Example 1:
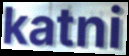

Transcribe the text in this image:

katni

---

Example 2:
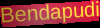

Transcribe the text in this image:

Bendapudi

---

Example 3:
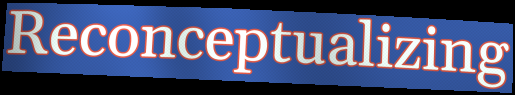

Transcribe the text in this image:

Reconceptualizing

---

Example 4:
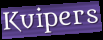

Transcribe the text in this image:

Kuipers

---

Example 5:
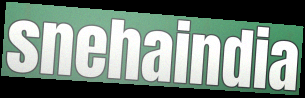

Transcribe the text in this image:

snehaindia